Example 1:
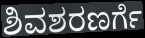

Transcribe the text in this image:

ಶಿವಶರಣರ್ಗೆ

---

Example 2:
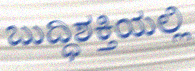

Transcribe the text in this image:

ಬುದ್ಧಿಶಕ್ತಿಯಲ್ಲಿ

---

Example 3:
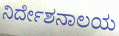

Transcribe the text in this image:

ನಿರ್ದೇಶನಾಲಯ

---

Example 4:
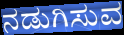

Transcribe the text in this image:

ನಡುಗಿಸುವ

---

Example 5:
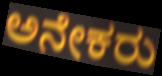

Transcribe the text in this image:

ಅನೇಕರು